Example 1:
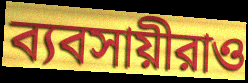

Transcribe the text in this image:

ব্যবসায়ীরাও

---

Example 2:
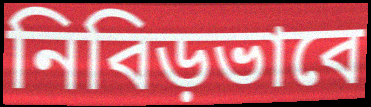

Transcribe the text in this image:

নিবিড়ভাবে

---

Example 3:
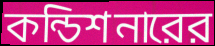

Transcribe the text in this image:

কন্ডিশনারের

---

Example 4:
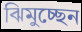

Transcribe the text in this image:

ঝিমুচ্ছেন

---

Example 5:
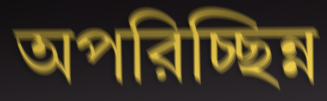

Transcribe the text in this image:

অপরিচ্ছিন্ন